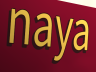
naya